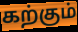
கற்கும்